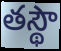
తస్థౌ